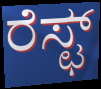
ರೆಸ್ಟ್